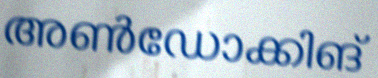
അൺഡോക്കിങ്